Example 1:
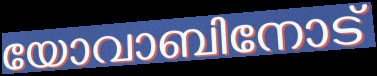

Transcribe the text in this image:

യോവാബിനോട്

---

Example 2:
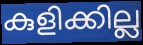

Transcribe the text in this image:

കുളിക്കില്ല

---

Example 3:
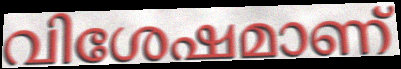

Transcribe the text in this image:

വിശേഷമാണ്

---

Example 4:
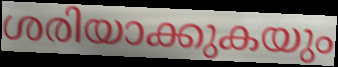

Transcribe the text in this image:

ശരിയാക്കുകയും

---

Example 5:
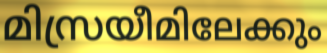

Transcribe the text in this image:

മിസ്രയീമിലേക്കും